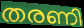
തരണി